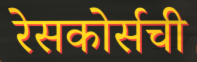
रेसकोर्सची